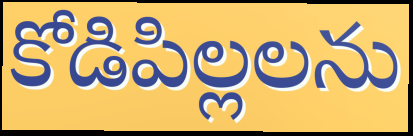
కోడిపిల్లలను